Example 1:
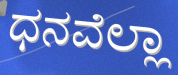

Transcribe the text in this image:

ಧನವೆಲ್ಲಾ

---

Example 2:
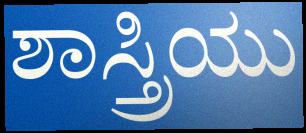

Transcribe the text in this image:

ಶಾಸ್ತ್ರಿಯು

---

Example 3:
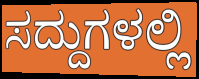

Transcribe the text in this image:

ಸದ್ದುಗಳಲ್ಲಿ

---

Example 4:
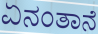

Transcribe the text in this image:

ಏನಂತಾನೆ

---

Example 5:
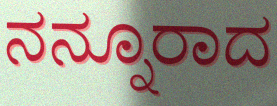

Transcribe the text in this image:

ನನ್ನೂರಾದ